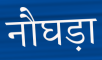
नौघड़ा